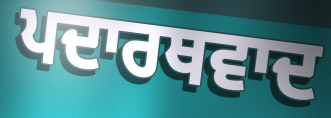
ਪਦਾਰਥਵਾਦ